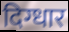
दिग्धार